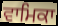
ਵਾਮਿਕਾ